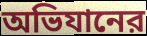
অভিযানের